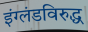
इंग्लंडविरुद्ध